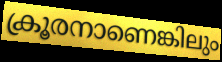
ക്രൂരനാണെങ്കിലും